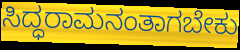
ಸಿದ್ಧರಾಮನಂತಾಗಬೇಕು